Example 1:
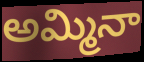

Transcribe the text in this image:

అమ్మినా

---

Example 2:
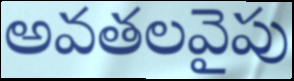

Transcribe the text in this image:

అవతలవైపు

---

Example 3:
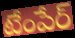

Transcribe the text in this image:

టేంపేర్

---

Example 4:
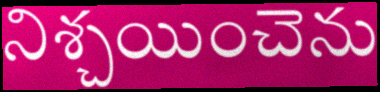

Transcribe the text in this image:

నిశ్చయించెను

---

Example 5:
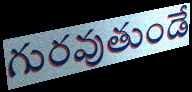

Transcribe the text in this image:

గురవుతుండే